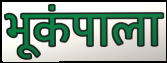
भूकंपाला